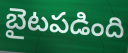
బైటపడింది